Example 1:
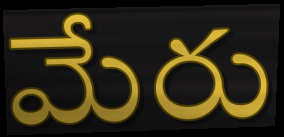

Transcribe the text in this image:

మేరు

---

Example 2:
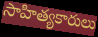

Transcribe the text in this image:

సాహిత్యకారులు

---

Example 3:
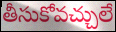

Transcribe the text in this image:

తీసుకోవచ్చులే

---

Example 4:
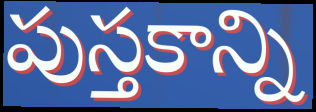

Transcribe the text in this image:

పుస్తకాన్ని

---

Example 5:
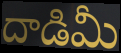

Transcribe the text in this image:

దాడిమీ